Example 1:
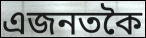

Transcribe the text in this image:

এজনতকৈ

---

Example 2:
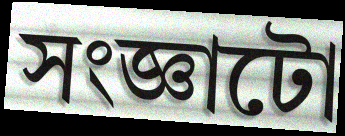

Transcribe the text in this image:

সংজ্ঞাটো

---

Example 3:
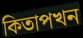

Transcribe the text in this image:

কিতাপখন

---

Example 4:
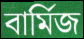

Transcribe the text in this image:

বাৰ্মিজ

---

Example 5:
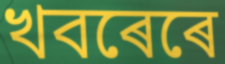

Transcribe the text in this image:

খবৰেৰে